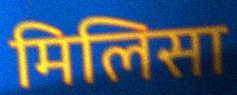
मिलिसा